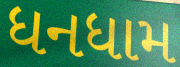
ધનધામ